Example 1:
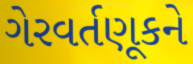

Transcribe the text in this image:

ગેરવર્તણૂકને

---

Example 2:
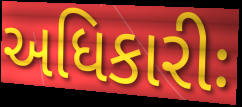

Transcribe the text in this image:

અધિકારીઃ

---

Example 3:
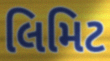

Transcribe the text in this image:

લિમિટ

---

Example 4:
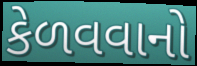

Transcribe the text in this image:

કેળવવાનો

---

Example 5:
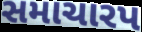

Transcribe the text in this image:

સમાચારપ